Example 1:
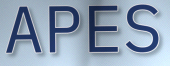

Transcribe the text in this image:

APES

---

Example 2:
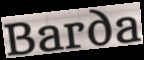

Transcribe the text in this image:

Barda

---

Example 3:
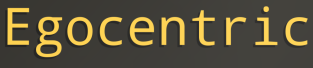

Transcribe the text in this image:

Egocentric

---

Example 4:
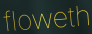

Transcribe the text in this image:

floweth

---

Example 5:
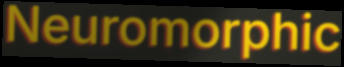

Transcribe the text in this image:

Neuromorphic